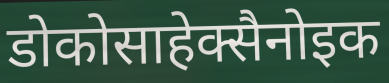
डोकोसाहेक्सैनोइक